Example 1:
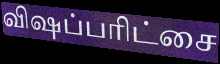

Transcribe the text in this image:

விஷப்பரிட்சை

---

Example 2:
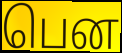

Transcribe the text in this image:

பென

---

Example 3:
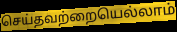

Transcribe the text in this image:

செய்தவற்றையெல்லாம்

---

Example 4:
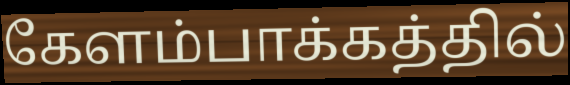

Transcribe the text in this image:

கேளம்பாக்கத்தில்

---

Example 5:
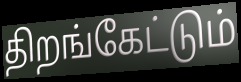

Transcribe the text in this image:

திறங்கேட்டும்